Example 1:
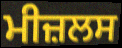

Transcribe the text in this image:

ਮੀਜ਼ਲਸ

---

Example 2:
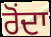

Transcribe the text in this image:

ਰੋਂਦਾ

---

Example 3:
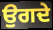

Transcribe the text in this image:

ਉਗਦੇ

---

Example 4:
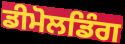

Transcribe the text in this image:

ਡੀਮੋਲਡਿੰਗ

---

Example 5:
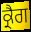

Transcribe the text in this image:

ਕ੍ਰੈਗ